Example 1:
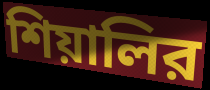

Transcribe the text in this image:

শিয়ালির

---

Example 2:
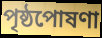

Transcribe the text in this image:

পৃষ্ঠপোষণা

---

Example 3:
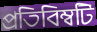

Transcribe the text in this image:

প্রতিবিম্বটি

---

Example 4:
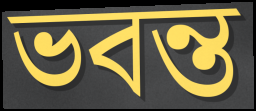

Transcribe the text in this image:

ভবন্ত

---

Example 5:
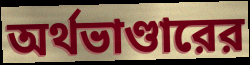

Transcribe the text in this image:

অর্থভাণ্ডারের